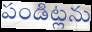
పండిట్లను